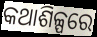
କଥାଶିଳ୍ପରେ